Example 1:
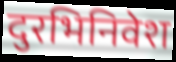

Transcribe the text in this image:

दुरभिनिवेश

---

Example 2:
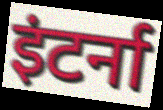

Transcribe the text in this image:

इंटर्ना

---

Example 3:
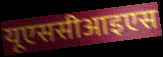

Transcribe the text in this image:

यूएससीआइएस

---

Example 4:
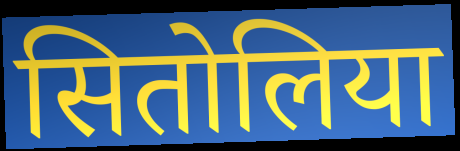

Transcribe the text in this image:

सितोलिया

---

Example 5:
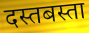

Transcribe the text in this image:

दस्तबस्ता